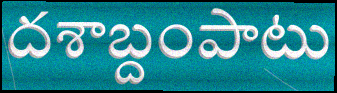
దశాబ్దంపాటు